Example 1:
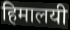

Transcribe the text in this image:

हिमालयी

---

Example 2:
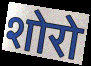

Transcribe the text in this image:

शोरो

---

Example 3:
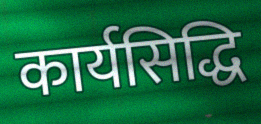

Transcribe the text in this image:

कार्यसिद्धि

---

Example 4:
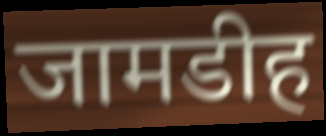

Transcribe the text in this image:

जामडीह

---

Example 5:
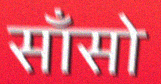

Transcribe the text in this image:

साँसो